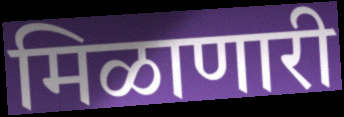
मिळाणारी